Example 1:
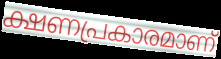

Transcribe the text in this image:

ക്ഷണപ്രകാരമാണ്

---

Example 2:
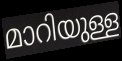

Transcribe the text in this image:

മാറിയുള്ള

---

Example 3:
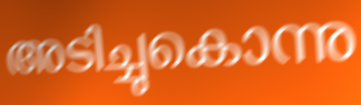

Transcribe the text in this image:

അടിച്ചുകൊന്നു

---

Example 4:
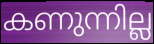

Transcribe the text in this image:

കണുന്നില്ല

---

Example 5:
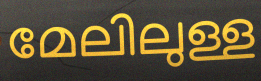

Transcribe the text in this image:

മേലിലുള്ള